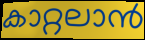
കാറ്റലാൻ